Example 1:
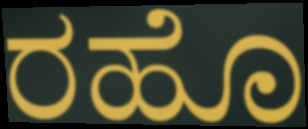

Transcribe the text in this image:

ರಹೊ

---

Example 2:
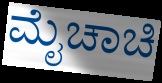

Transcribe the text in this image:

ಮೈಚಾಚಿ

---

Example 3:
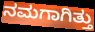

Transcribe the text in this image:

ನಮಗಾಗಿತ್ತು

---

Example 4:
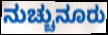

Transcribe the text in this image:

ನುಚ್ಚುನೂರು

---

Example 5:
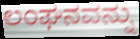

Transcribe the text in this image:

ಲಂಘನವನ್ನು